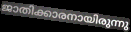
ജാതിക്കാരനായിരുന്നു